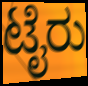
ಟೈರು